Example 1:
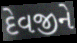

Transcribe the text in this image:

દેવજીને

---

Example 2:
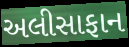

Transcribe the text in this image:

અલીસાફાન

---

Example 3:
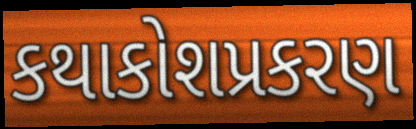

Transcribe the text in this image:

કથાકોશપ્રકરણ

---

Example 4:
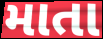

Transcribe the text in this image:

માતા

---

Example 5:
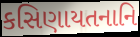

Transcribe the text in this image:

કસિણાયતનાનિ